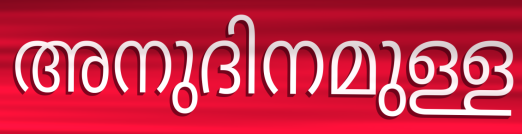
അനുദിനമുള്ള